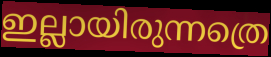
ഇല്ലായിരുന്നത്രെ